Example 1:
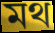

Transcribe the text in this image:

মথ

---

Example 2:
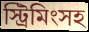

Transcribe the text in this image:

স্ট্রিমিংসহ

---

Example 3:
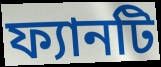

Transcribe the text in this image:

ফ্যানটি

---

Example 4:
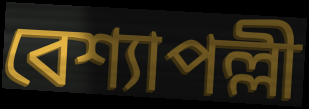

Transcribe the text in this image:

বেশ্যাপল্লী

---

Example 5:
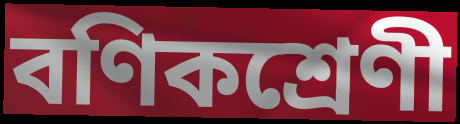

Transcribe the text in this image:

বণিকশ্রেণী